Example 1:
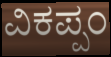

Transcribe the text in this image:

ವಿಕಪ್ಪಂ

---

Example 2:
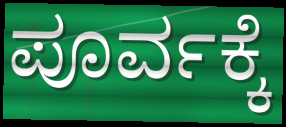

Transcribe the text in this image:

ಪೂರ್ವಕ್ಕೆ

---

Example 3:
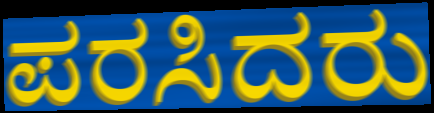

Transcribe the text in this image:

ಪರಸಿದರು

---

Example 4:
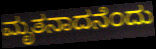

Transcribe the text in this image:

ಮೃತನಾದನೆಂದು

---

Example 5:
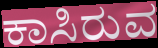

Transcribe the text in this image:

ಕಾಸಿರುವ